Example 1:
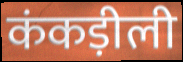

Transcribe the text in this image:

कंकड़ीली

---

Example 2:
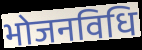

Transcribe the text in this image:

भोजनविधि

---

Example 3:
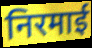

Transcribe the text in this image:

निरमाई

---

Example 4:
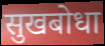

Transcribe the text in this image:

सुखबोधा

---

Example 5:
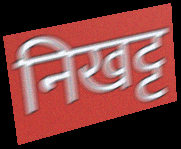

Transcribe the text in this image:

निखट्ट